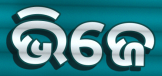
ଭିଜେ